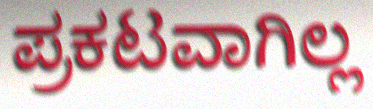
ಪ್ರಕಟವಾಗಿಲ್ಲ